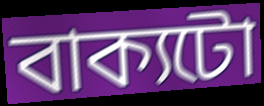
বাক্যটো